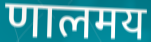
णालमय